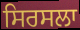
ਸਿਰਸਲਾ